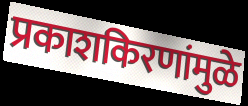
प्रकाशकिरणांमुळे